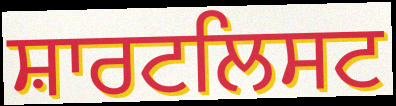
ਸ਼ਾਰਟਲਿਸਟ